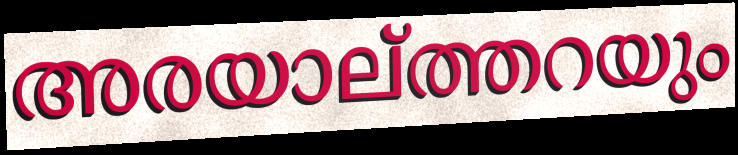
അരയാല്ത്തറയും